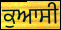
ਕੁਆਸੀ